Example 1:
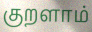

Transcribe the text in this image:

குறளாம்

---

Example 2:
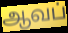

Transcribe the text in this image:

ஆவப்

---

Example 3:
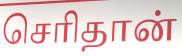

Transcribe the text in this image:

செரிதான்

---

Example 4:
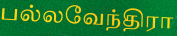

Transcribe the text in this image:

பல்லவேந்திரா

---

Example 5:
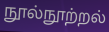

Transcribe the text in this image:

நூல்நூற்றல்